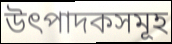
উৎপাদকসমূহ